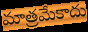
మాత్రమేకాదు